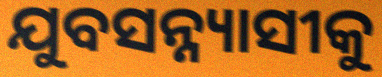
ଯୁବସନ୍ନ୍ୟାସୀକୁ